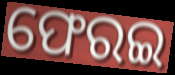
ଫେରଇ